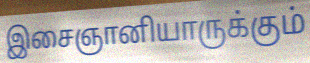
இசைஞானியாருக்கும்